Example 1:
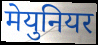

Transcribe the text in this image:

मेयुनियर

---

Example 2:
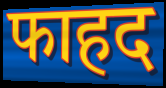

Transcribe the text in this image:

फाहद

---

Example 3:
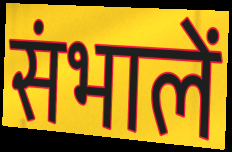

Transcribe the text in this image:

संभालें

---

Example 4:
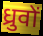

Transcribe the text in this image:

ध्रुवों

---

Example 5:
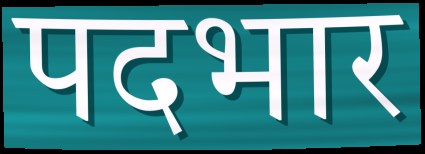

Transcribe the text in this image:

पदभार